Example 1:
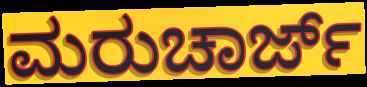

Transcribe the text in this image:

ಮರುಚಾರ್ಜ್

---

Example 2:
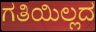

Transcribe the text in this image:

ಗತಿಯಿಲ್ಲದ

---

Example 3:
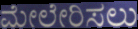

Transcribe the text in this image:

ಮೇಲೇರಿಸಲು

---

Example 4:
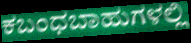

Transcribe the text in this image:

ಕಬಂಧಬಾಹುಗಳಲ್ಲಿ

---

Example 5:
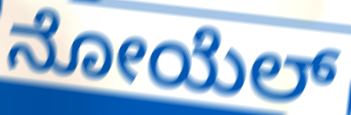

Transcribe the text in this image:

ನೋಯೆಲ್